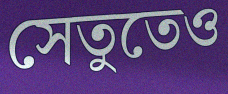
সেতুতেও